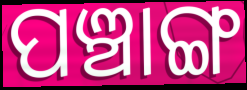
ପଞ୍ଚାଙ୍ଗ